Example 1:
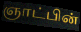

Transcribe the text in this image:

ஞாட்பின்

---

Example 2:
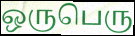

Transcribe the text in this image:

ஒருபெரு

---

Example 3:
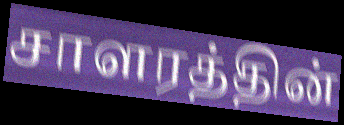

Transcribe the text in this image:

சாளரத்தின்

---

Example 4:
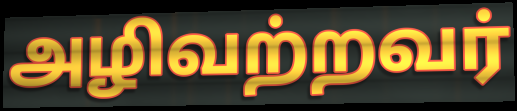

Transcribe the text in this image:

அழிவற்றவர்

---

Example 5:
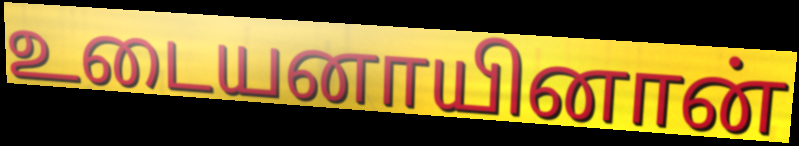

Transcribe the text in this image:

உடையனாயினான்